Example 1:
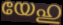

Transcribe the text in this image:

യേഹു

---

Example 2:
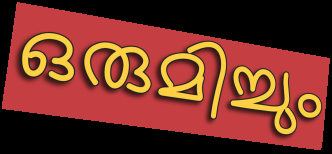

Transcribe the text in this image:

ഒരുമിച്ചും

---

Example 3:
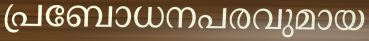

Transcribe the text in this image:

പ്രബോധനപരവുമായ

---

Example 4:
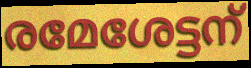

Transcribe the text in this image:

രമേശേട്ടന്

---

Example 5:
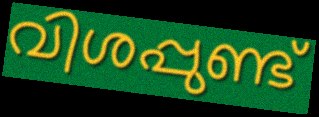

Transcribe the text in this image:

വിശപ്പുണ്ട്